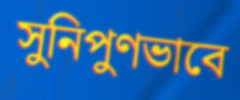
সুনিপুণভাবে